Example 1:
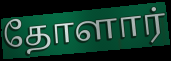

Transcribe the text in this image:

தோளார்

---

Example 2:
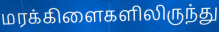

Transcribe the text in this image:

மரக்கிளைகளிலிருந்து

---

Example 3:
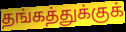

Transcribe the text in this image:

தங்கத்துக்குக்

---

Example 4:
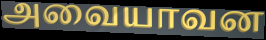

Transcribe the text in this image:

அவையாவன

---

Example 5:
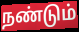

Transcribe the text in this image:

நண்டும்